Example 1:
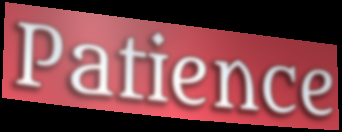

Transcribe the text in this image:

Patience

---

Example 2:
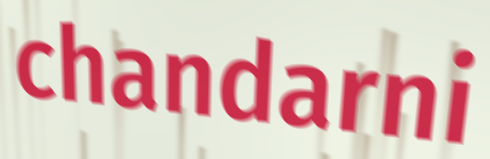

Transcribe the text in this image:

chandarni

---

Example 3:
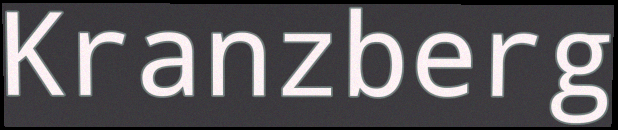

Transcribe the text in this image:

Kranzberg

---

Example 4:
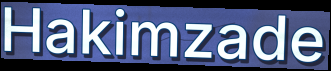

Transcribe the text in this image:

Hakimzade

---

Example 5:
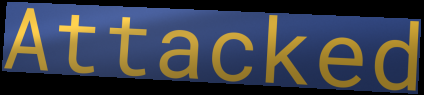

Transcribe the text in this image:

Attacked